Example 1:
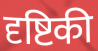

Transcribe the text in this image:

दृष्टिकी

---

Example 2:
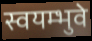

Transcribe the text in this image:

स्वयम्भुवे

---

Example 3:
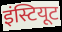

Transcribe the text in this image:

इंस्टियूट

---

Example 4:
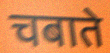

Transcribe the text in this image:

चबाते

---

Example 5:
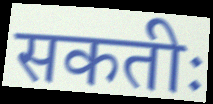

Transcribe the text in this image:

सकतीः